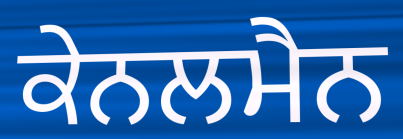
ਕੇਨਲਮੈਨ